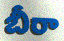
బీరా